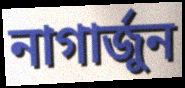
নাগাৰ্জুন